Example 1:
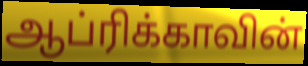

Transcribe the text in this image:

ஆப்ரிக்காவின்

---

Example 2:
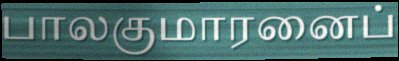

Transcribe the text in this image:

பாலகுமாரனைப்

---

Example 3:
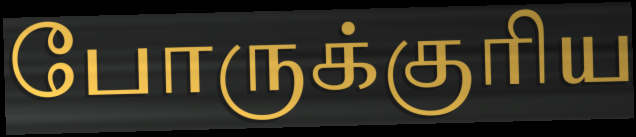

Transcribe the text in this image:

போருக்குரிய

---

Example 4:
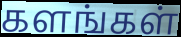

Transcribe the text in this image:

களங்கள்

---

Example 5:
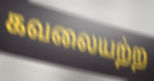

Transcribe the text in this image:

கவலையற்ற